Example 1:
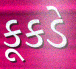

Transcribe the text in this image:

કૂકડે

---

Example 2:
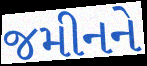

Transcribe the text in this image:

જમીનને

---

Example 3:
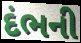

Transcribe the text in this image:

દંભની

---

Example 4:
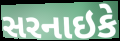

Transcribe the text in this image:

સરનાઇકે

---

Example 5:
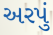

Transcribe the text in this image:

અરપું